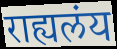
राह्यलंय